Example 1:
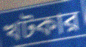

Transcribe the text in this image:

খটকার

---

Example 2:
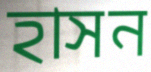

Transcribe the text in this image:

হাসন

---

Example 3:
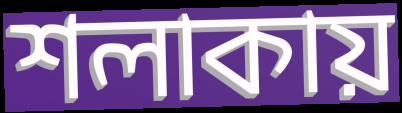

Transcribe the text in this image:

শলাকায়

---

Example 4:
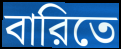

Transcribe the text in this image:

বারিতে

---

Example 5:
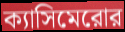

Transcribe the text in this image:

ক্যাসিমেরোর